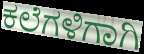
ಕಲೆಗಳಿಗಾಗಿ